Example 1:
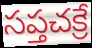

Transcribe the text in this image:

సప్తచక్రే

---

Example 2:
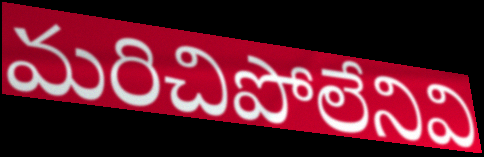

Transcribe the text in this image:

మరిచిపోలేనివి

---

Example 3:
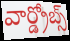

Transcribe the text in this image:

వార్డ్రోబ్స్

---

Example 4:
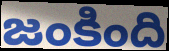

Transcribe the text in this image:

జంకింది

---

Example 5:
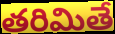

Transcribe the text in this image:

తరిమితే